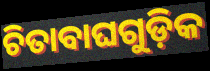
ଚିତାବାଘଗୁଡ଼ିକ